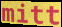
mitt